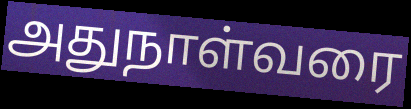
அதுநாள்வரை